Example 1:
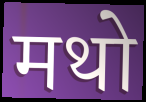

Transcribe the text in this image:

मथो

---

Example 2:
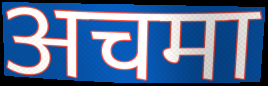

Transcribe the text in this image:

अचमा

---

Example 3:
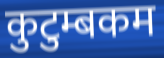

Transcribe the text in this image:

कुटुम्बकम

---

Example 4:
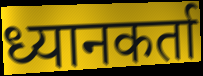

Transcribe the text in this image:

ध्यानकर्ता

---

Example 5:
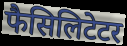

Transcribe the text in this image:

फैसिलिटेटर